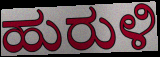
ಹುರುಳಿ